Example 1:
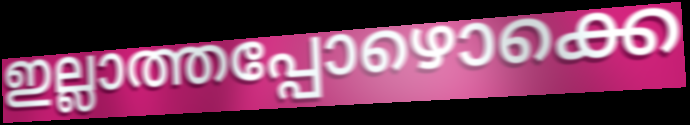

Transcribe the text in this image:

ഇല്ലാത്തപ്പോഴൊക്കെ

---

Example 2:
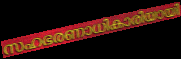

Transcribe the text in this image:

സഹഭരണാധികാരിയായി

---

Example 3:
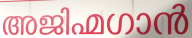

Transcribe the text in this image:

അജിഹ്മഗാൻ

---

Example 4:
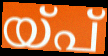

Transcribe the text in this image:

യ്പ്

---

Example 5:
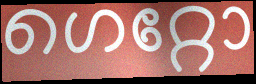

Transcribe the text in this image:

ഗെറ്റോ